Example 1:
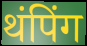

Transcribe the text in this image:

थंपिंग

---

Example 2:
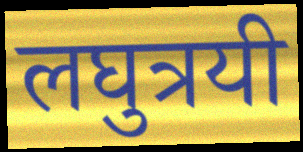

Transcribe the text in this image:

लघुत्रयी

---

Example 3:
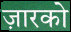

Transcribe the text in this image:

ज़ारको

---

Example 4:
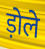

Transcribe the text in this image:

ड़ोले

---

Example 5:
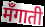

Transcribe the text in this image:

मँगाती